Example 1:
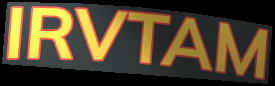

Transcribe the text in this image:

IRVTAM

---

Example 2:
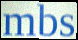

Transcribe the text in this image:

mbs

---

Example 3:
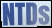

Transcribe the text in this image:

NTDs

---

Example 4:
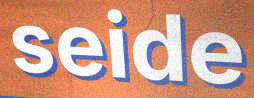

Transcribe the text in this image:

seide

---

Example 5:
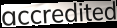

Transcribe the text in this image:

accredited